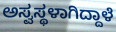
ಅಸ್ವಸ್ಥಳಾಗಿದ್ದಾಳೆ